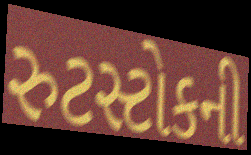
રુટસ્ટોકની